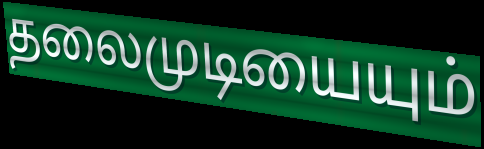
தலைமுடியையும்